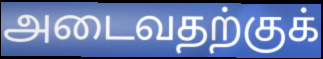
அடைவதற்குக்